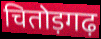
चितोड़गढ़